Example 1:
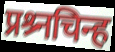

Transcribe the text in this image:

प्रश्र्नचिन्ह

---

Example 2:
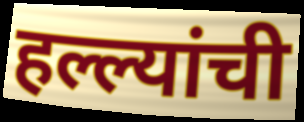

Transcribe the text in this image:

हल्ल्यांची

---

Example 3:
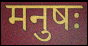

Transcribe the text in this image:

मनुषः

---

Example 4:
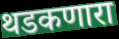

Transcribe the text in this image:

थडकणारा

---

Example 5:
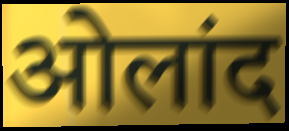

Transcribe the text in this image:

ओलांद